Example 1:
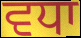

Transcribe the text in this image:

ਵਧਾ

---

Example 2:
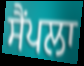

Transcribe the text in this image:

ਸੈਂਪਲਾ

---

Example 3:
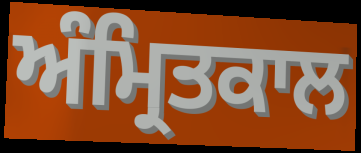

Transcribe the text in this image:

ਅੰਮ੍ਰਿਤਕਾਲ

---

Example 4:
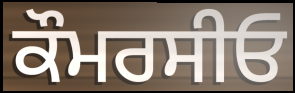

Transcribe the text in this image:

ਕੌਮਰਸੀਓ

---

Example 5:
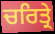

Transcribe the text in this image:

ਚਰਿਤ੍ਰੇ